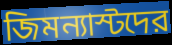
জিমন্যাস্টদের